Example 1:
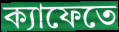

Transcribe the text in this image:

ক্যাফেতে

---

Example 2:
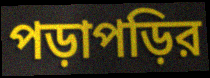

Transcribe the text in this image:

পড়াপড়ির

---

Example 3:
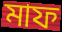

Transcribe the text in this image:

মাফ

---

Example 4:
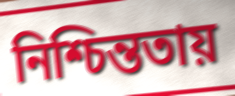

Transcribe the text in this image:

নিশ্চিন্ততায়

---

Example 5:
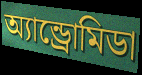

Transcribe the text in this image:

অ্যান্ড্রোমিডা